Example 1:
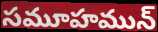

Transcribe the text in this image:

సమూహమున్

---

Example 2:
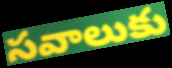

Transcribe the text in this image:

సవాలుకు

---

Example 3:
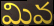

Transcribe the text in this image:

మివ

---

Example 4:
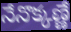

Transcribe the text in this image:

నేనొక్కణ్ణే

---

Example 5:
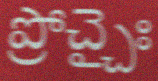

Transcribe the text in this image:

ప్రోచ్చైః